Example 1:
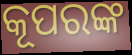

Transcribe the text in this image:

କୂପରଙ୍କ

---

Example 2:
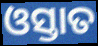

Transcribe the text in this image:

ଓସ୍ତାତ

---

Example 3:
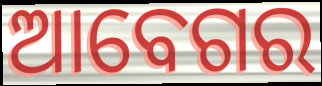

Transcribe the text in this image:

ଆବେଗର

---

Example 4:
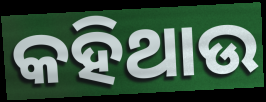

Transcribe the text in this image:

କହିଥାଉ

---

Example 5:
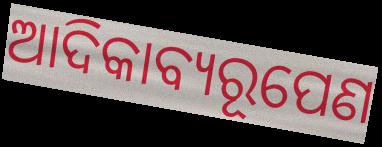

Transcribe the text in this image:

ଆଦିକାବ୍ୟରୂପେଣ